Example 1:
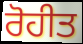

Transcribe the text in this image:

ਰੋਹੀਤ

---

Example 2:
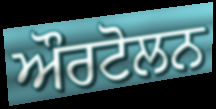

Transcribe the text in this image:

ਔਰਟੋਲਨ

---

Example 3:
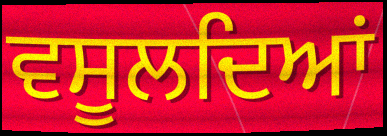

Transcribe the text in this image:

ਵਸੂਲਦਿਆਂ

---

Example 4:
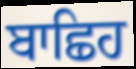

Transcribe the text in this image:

ਬਾਛਿਹ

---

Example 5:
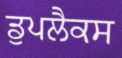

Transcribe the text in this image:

ਡੁਪਲੈਕਸ